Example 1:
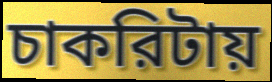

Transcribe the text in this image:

চাকরিটায়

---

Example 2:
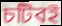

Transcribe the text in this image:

চটিবই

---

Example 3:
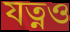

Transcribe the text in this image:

যত্নও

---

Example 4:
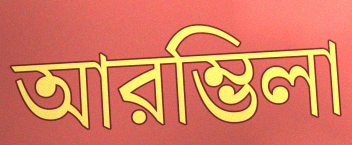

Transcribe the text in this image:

আরম্ভিলা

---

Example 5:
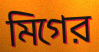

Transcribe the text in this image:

মিগের